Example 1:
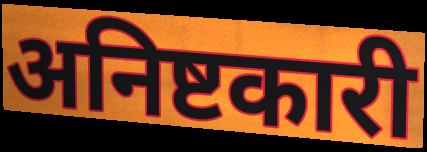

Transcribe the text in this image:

अनिष्टकारी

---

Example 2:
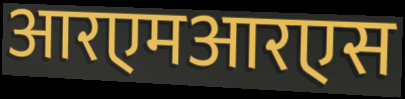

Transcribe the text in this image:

आरएमआरएस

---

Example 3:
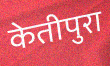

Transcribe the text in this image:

केतीपुरा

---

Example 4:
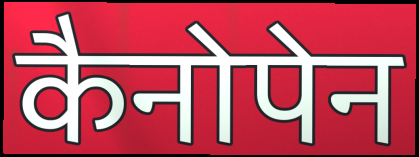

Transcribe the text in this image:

कैनोपेन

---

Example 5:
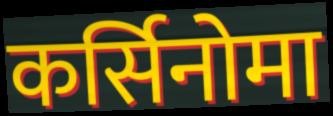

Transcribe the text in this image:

कर्सिनोमा